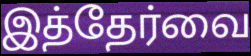
இத்தேர்வை